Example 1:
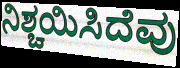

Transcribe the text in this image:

ನಿಶ್ಚಯಿಸಿದೆವು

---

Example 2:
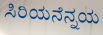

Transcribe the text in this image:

ಸಿರಿಯನೆನ್ನಯ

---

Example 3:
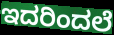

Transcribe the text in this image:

ಇದರಿಂದಲೆ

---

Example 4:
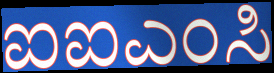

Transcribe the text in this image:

ಐಐಎಂಸಿ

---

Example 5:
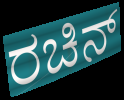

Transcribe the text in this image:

ರಚಿನ್